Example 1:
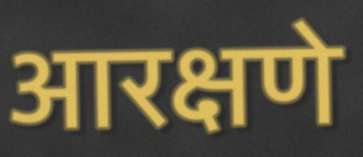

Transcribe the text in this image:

आरक्षणे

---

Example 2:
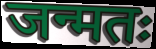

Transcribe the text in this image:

जन्मतः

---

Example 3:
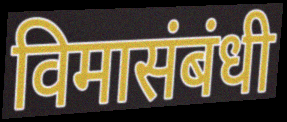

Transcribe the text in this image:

विमासंबंधी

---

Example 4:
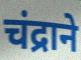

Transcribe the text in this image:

चंद्राने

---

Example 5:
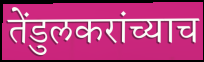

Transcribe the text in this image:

तेंडुलकरांच्याच